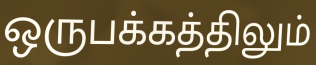
ஒருபக்கத்திலும்